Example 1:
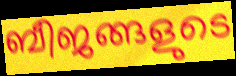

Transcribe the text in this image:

ബീജങ്ങളുടെ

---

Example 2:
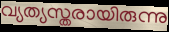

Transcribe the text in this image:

വ്യത്യസ്തരായിരുന്നു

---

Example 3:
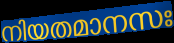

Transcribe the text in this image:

നിയതമാനസഃ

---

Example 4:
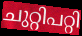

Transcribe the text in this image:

ചുറ്റിപറ്റി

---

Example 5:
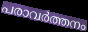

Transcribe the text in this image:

പരാവർത്തനം